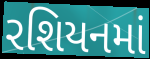
રશિયનમાં